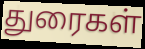
துரைகள்